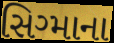
સિગ્માના